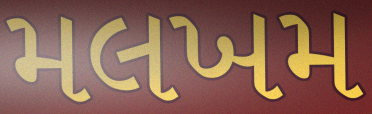
મલખમ